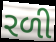
રળી